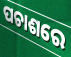
ପଚାଶରେ